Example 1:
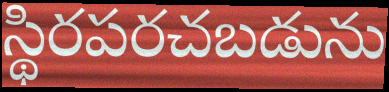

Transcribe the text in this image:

స్థిరపరచబడును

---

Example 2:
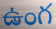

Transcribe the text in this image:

ఉంగ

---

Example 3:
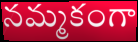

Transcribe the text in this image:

నమ్మకంగా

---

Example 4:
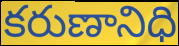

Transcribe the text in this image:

కరుణానిధి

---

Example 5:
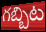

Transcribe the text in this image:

గబ్బిట